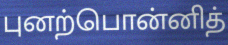
புனற்பொன்னித்